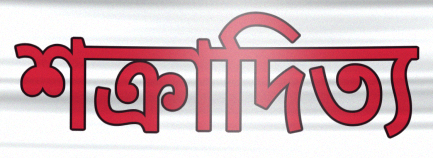
শক্রাদিত্য